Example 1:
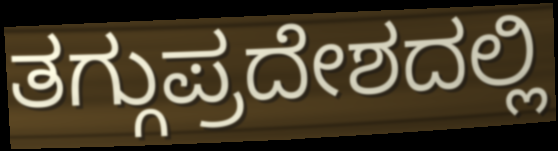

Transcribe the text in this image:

ತಗ್ಗುಪ್ರದೇಶದಲ್ಲಿ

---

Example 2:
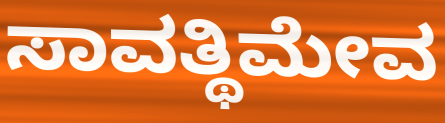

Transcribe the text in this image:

ಸಾವತ್ಥಿಮೇವ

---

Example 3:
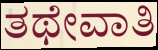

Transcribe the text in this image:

ತಥೇವಾತಿ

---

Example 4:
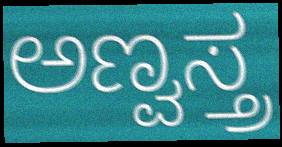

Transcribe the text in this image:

ಅಣ್ವಸ್ತ್ರ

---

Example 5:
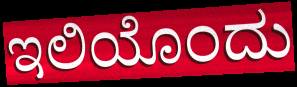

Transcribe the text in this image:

ಇಲಿಯೊಂದು